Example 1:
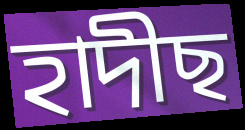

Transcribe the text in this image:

হাদীছ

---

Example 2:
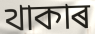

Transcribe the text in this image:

থাকাৰ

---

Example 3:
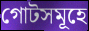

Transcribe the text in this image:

গোটসমূহে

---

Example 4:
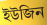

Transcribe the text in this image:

ইউজিন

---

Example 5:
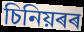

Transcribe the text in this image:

চিনিয়ৰৰ